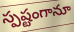
స్పష్టంగానూ